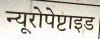
न्यूरोपेप्टाइड